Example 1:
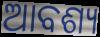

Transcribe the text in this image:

ଆବଶ୍ୟ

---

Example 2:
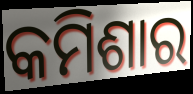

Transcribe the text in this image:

କମିଶାର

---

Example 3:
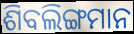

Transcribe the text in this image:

ଶିବଲିଙ୍ଗମାନ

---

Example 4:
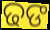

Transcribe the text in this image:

ଢଙ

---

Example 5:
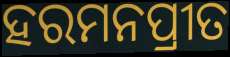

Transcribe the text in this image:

ହରମନପ୍ରୀତ